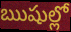
ఋషుల్లో